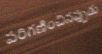
పరిగణించినప్పుడు